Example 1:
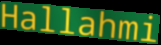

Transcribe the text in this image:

Hallahmi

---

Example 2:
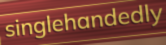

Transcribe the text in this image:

singlehandedly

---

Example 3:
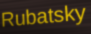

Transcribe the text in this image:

Rubatsky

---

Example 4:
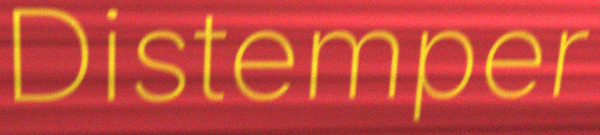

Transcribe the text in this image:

Distemper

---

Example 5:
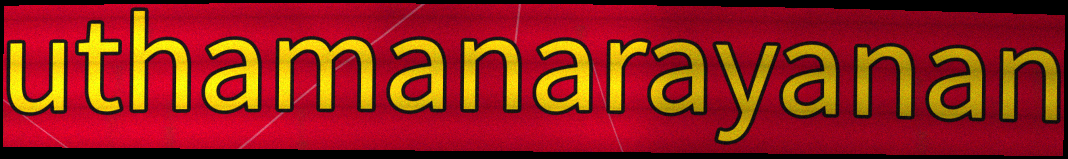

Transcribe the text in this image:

uthamanarayanan